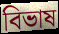
বিভাষ